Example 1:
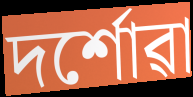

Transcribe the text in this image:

দৰ্শোৱা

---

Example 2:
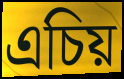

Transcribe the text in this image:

এচিয়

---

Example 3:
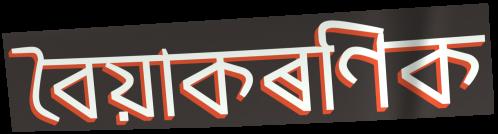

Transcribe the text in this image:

বৈয়াকৰণিক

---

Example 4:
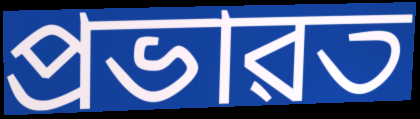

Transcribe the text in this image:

প্ৰভাৱত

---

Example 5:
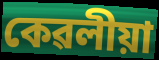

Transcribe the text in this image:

কেৱলীয়া